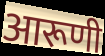
आरूणी